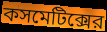
কসমেটিক্সের